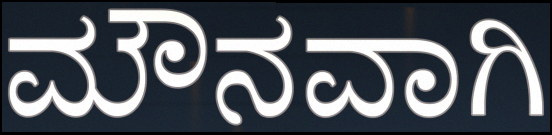
ಮೌನವಾಗಿ